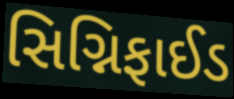
સિગ્નિફાઈડ